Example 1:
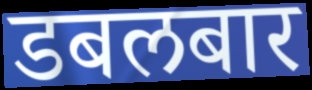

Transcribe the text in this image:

डबलबार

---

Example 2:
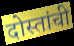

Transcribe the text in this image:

दोस्तांची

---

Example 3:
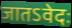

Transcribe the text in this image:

जातऽवेदः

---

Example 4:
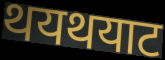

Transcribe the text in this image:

थयथयाट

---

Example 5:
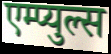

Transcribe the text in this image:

एम्प्युल्स